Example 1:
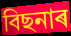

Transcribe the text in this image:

বিছনাৰ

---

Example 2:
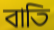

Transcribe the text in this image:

বাতি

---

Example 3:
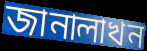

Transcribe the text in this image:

জানালাখন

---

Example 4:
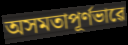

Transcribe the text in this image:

অসমতাপূৰ্ণভাৱে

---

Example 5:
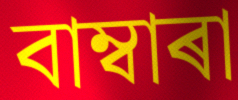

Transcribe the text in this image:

বাম্বাৰা